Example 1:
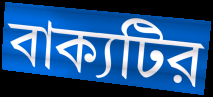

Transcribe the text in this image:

বাক্যটির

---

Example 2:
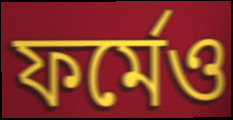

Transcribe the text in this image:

ফর্মেও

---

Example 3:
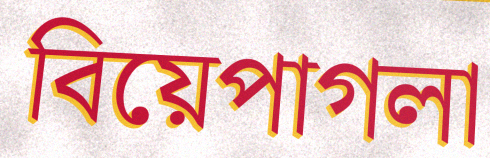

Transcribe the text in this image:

বিয়েপাগলা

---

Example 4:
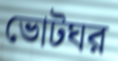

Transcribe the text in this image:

ভোটঘর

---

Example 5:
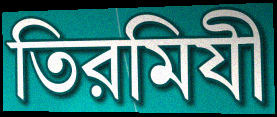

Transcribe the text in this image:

তিরমিযী